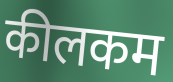
कीलकम